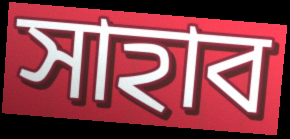
সাহাব